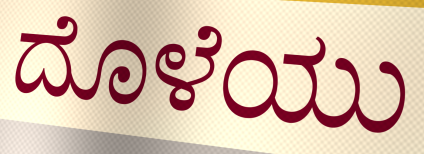
ದೊಳೆಯು